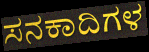
ಸನಕಾದಿಗಳ